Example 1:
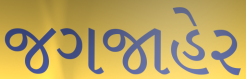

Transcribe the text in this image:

જગજાહેર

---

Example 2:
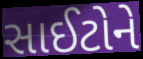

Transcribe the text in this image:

સાઈટોને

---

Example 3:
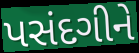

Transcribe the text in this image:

પસંદગીને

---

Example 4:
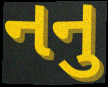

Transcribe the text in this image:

નનુ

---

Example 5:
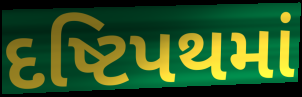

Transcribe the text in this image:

દષ્ટિપથમાં